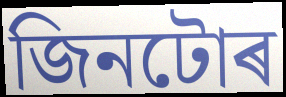
জিনটোৰ